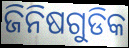
ଜିନିଷଗୁଡିକ